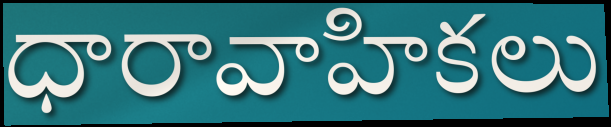
ధారావాహికలు